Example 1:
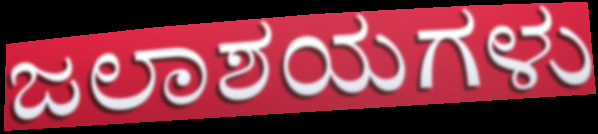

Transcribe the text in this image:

ಜಲಾಶಯಗಳು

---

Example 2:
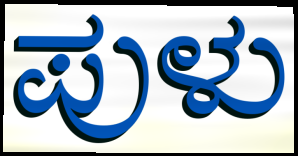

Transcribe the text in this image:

ಪುಳು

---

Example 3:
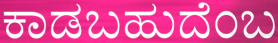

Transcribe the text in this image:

ಕಾಡಬಹುದೆಂಬ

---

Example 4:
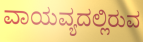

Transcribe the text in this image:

ವಾಯವ್ಯದಲ್ಲಿರುವ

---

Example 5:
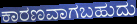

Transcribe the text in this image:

ಕಾರಣವಾಗಬಹುದು